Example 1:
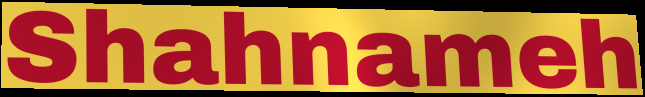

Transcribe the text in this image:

Shahnameh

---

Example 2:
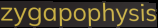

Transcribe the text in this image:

zygapophysis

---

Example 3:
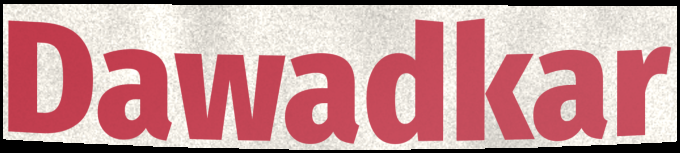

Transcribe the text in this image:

Dawadkar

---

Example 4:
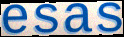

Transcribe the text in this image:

esas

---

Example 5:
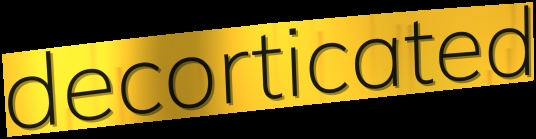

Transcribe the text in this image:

decorticated